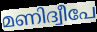
മണിദ്വീപേ